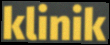
klinik